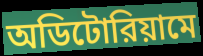
অডিটোরিয়ামে